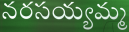
నరసయ్యమ్మ